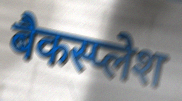
बैकस्प्लेश